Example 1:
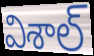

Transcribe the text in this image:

విశాల్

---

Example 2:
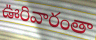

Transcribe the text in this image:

ఊరివారంతా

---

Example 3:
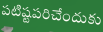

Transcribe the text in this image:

పటిష్టపరిచేందుకు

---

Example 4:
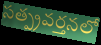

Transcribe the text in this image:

సత్ప్రవర్తనలో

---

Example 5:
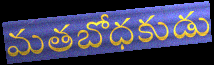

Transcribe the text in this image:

మతబోధకుడు